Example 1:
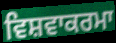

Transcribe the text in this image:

ਵਿਸ਼ਵਾਕਰਮਾ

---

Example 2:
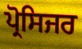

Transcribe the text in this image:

ਪ੍ਰੋਸਿਜਰ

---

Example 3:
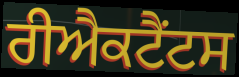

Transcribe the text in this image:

ਰੀਐਕਟੈਂਟਸ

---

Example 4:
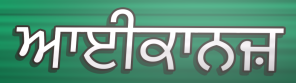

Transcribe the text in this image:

ਆਈਕਾਨਜ਼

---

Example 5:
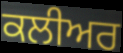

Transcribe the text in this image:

ਕਲੀਅਰ